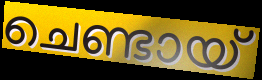
ചെണ്ടായ്